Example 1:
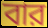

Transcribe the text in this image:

বার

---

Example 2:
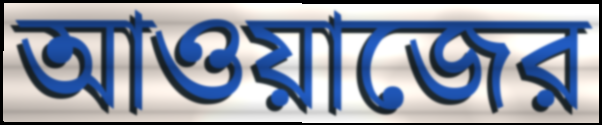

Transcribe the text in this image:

আওয়াজের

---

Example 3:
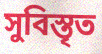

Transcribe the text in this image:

সুবিস্তৃত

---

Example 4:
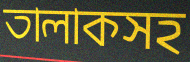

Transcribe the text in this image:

তালাকসহ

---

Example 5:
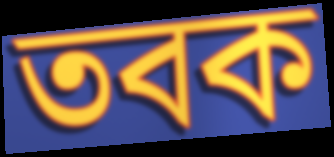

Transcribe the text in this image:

তবক